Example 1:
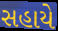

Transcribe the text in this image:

સહાયે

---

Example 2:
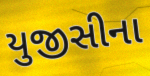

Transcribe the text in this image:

યુજીસીના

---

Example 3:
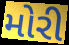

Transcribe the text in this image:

મોરી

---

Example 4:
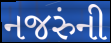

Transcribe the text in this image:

નજરુંની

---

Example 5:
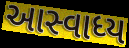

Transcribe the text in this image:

આસ્વાધ્ય